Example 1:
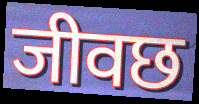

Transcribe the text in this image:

जीवछ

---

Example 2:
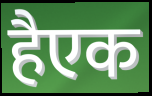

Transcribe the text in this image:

हैएक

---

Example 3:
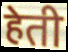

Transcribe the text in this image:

हेती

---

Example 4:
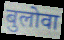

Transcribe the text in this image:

बुलोवा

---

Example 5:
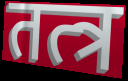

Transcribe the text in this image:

तत्त्र